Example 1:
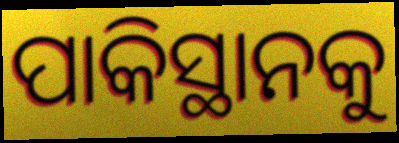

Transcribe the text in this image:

ପାକିସ୍ଥାନକୁ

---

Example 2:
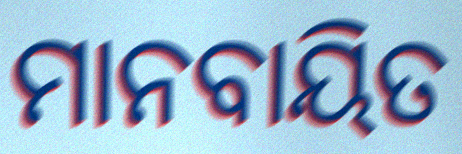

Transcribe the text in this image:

ମାନବାୟିତ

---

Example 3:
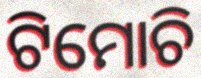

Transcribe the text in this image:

ଟିମୋଚି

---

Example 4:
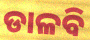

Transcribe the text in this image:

ଡାଳବି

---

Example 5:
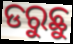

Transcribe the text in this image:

ଡରୁଛୁ